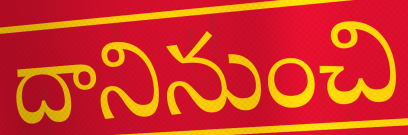
దానినుంచి